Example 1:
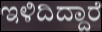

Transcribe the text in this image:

ಇಳಿದಿದ್ದಾರೆ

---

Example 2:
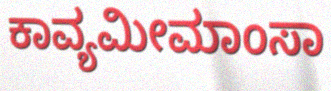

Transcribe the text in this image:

ಕಾವ್ಯಮೀಮಾಂಸಾ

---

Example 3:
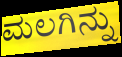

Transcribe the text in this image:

ಮಲಗಿನ್ನು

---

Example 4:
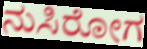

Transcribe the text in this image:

ನುಸಿರೋಗ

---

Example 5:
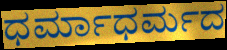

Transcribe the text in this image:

ಧರ್ಮಾಧರ್ಮದ